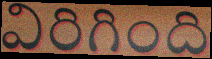
విరిగింది